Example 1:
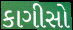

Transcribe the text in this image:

કાગીસો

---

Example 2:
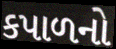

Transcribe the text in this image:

કપાળનો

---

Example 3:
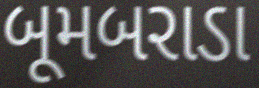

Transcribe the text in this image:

બૂમબરાડા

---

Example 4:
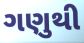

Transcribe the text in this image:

ગણુથી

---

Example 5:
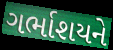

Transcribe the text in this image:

ગર્ભાશયને